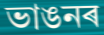
ভাঙনৰ